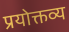
प्रयोक्तव्य